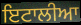
ਇਟਾਲੀਆ